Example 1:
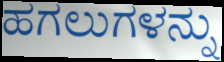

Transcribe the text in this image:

ಹಗಲುಗಳನ್ನು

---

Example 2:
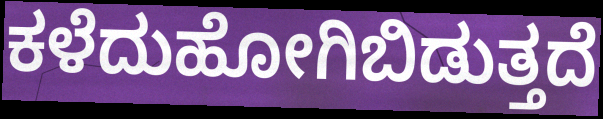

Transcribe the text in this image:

ಕಳೆದುಹೋಗಿಬಿಡುತ್ತದೆ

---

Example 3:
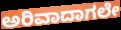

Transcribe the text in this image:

ಅರಿವಾದಾಗಲೇ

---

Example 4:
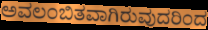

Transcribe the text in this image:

ಅವಲಂಬಿತವಾಗಿರುವುದರಿಂದ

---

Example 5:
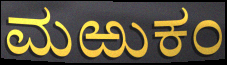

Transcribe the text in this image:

ಮಱುಕಂ